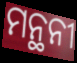
ମନ୍ଥନୀ